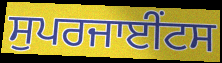
ਸੁਪਰਜਾਈਂਟਸ